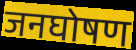
जनघोषण